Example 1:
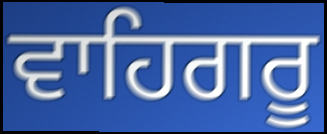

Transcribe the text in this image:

ਵਾਹਿਗਰੂ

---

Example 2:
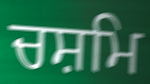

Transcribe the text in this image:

ਚਸ਼ਮਿ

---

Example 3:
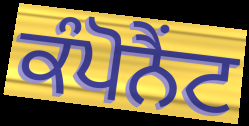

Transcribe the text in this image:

ਕੰਪੋਨੈਂਟ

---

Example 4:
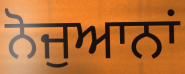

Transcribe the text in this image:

ਨੋਜੁਆਨਾਂ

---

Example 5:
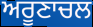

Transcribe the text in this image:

ਅਰੂਣਾਚਲ